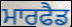
ਮਾਰਫੈਡ